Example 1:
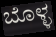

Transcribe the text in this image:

ಬೊಳ್ಳ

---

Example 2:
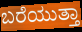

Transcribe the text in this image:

ಬರೆಯುತ್ತಾ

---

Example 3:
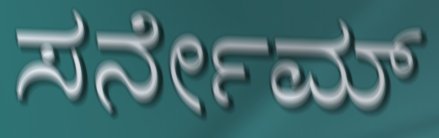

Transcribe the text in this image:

ಸರ್ನೇಮ್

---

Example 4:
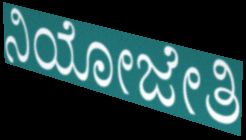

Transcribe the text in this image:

ನಿಯೋಜೇತಿ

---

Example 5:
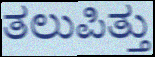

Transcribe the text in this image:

ತಲುಪಿತ್ತು